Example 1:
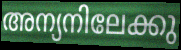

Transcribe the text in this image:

അന്യനിലേക്കു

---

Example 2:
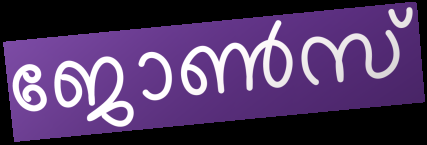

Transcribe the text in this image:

ജോൺസ്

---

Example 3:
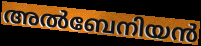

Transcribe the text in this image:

അൽബേനിയൻ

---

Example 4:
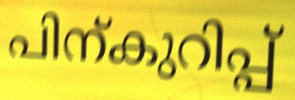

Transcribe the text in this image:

പിന്കുറിപ്പ്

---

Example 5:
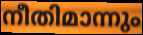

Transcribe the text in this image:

നീതിമാന്നും